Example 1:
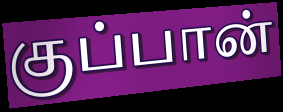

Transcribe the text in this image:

குப்பான்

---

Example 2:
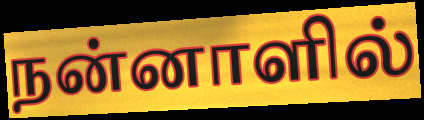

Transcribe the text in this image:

நன்னாளில்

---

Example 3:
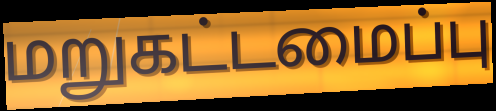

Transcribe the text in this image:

மறுகட்டமைப்பு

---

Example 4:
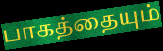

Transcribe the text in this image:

பாகத்தையும்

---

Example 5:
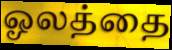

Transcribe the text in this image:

ஓலத்தை